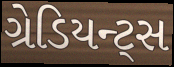
ગ્રેડિયન્ટ્સ